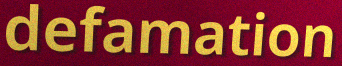
defamation